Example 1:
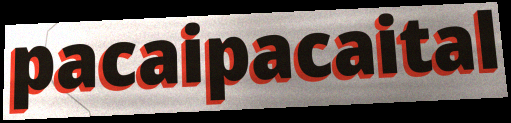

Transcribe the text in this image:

pacaipacaital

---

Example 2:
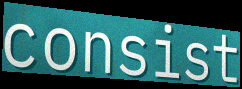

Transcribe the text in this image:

consist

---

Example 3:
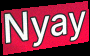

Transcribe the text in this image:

Nyay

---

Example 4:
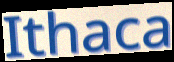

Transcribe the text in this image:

Ithaca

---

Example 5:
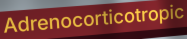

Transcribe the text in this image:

Adrenocorticotropic